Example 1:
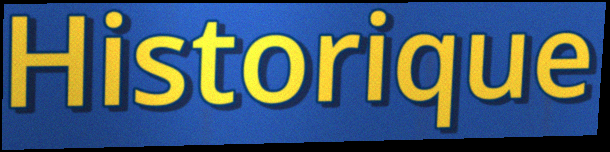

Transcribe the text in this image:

Historique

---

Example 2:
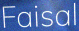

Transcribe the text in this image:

Faisal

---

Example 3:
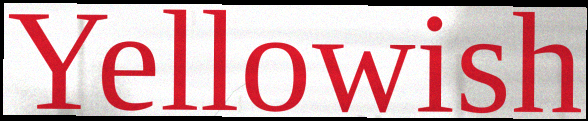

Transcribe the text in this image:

Yellowish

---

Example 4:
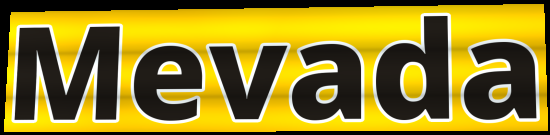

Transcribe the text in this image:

Mevada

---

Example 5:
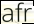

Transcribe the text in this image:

afr